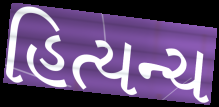
હિત્યન્ચ